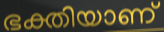
ഭക്തിയാണ്